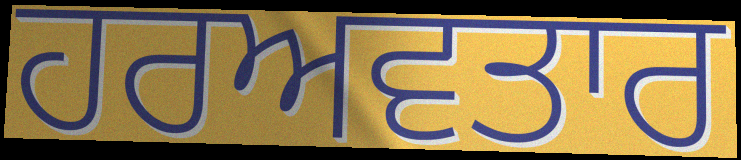
ਹਰਅਵਤਾਰ